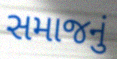
સમાજનું